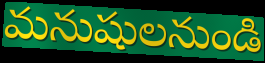
మనుషులనుండి